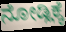
ನೋಡ್ಲಿಕ್ಕೆ